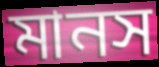
মানস